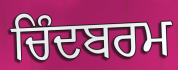
ਚਿੰਦਬਰਮ